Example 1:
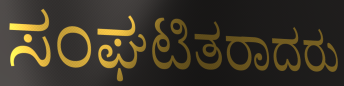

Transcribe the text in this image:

ಸಂಘಟಿತರಾದರು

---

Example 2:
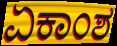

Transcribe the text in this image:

ಏಕಾಂಶ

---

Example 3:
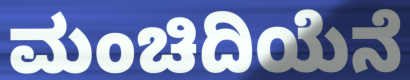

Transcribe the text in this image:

ಮಂಚಿದಿಯೆನೆ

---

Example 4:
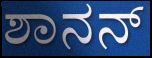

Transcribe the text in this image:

ಶಾನನ್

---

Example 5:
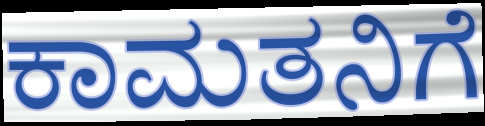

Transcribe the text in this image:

ಕಾಮತನಿಗೆ